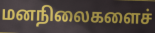
மனநிலைகளைச்